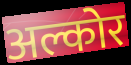
अल्कोर